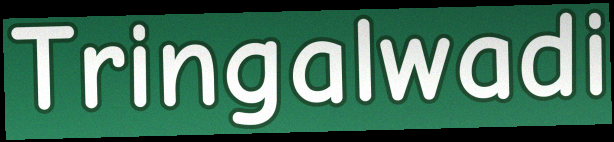
Tringalwadi